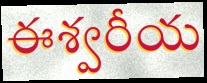
ఈశ్వరీయ